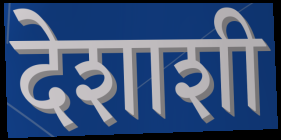
देशाशी